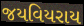
જયવિયરાય